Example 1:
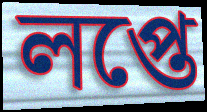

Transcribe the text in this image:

লপ্তে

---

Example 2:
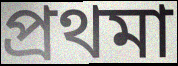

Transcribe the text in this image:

প্রথমা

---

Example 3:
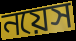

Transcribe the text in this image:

নয়েস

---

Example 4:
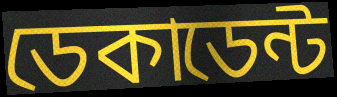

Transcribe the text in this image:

ডেকাডেন্ট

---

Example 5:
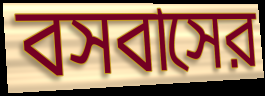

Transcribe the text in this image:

বসবাসের